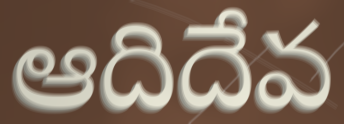
ఆదిదేవ